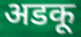
अडकू